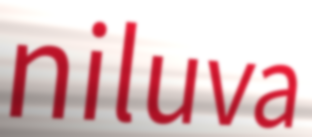
niluva